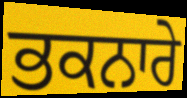
ਭਕਨਾਰੇ